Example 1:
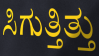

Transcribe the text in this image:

ಸಿಗುತ್ತಿತ್ತು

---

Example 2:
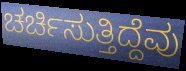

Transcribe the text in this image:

ಚರ್ಚಿಸುತ್ತಿದ್ದೆವು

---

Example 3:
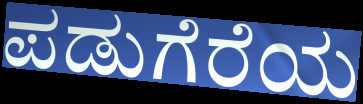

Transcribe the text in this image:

ಪಡುಗೆರೆಯ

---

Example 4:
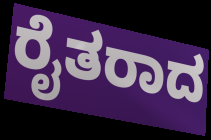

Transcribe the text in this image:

ರೈತರಾದ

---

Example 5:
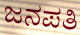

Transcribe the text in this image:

ಜನಪತಿ